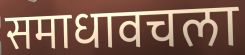
समाधावचला